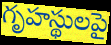
గృహస్థులపై